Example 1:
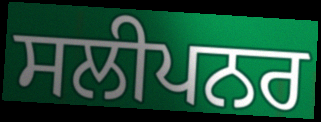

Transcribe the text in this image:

ਸਲੀਪਨਰ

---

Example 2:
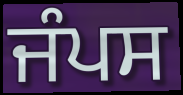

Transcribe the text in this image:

ਜੰਪਸ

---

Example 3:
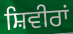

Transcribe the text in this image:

ਸ਼ਿਵੀਰਾਂ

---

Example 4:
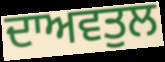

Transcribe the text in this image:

ਦਾਅਵਤੁਲ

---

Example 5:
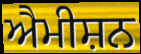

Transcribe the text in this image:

ਐਮੀਸ਼ਨ